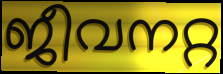
ജീവനറ്റ